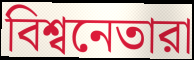
বিশ্বনেতারা